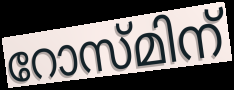
റോസ്മിന്